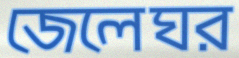
জেলেঘর